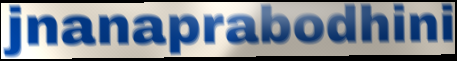
jnanaprabodhini